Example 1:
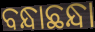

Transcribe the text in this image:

ବନ୍ଧାଛନ୍ଧା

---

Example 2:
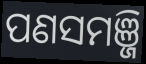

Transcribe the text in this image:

ପଣସମଞ୍ଜି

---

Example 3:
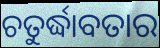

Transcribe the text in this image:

ଚତୁର୍ଦ୍ଧାବତାର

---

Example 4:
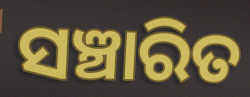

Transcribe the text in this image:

ସଞ୍ଚାରିତ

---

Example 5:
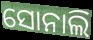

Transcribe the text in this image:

ସୋନାଲି